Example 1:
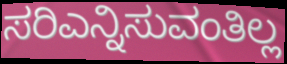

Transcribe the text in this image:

ಸರಿಎನ್ನಿಸುವಂತಿಲ್ಲ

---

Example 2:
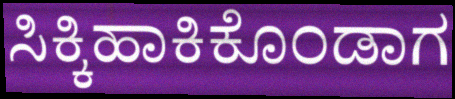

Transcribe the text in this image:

ಸಿಕ್ಕಿಹಾಕಿಕೊಂಡಾಗ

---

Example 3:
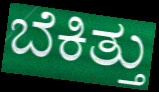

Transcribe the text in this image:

ಬೆಕಿತ್ತು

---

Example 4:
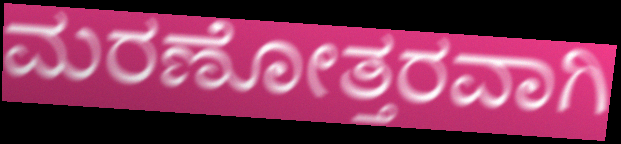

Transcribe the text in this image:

ಮರಣೋತ್ತರವಾಗಿ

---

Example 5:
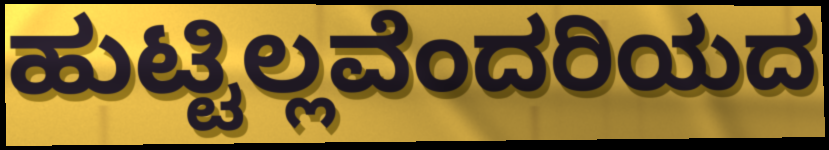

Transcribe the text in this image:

ಹುಟ್ಟಿಲ್ಲವೆಂದರಿಯದ